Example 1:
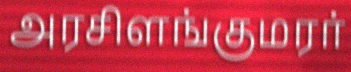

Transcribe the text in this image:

அரசிளங்குமரர்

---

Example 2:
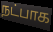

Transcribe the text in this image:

நட்பாக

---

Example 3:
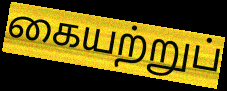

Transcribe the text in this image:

கையற்றுப்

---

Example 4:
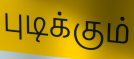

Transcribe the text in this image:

புடிக்கும்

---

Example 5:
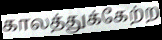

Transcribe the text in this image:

காலத்துக்கேற்ற